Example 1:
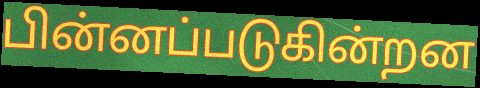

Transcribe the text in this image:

பின்னப்படுகின்றன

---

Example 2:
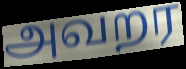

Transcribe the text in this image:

அவறர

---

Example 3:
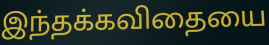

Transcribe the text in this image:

இந்தக்கவிதையை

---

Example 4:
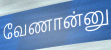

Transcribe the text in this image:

வேணான்னு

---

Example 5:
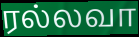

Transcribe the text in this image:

ரல்லவா